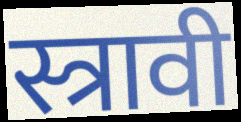
स्त्रावी